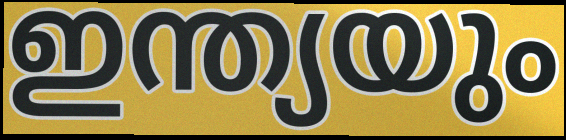
ഇന്ത്യയും